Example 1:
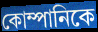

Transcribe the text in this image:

কোম্পানিকে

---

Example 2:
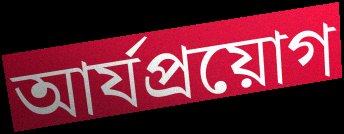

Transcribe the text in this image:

আর্যপ্রয়োগ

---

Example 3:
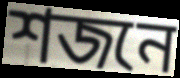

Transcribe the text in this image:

শজনে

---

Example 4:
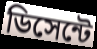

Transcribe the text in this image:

ডিসেন্টে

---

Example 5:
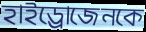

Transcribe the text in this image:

হাইড্রোজেনকে